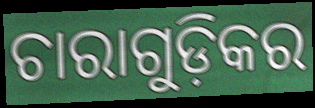
ଚାରାଗୁଡ଼ିକର